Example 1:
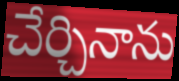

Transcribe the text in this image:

చేర్చినాను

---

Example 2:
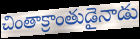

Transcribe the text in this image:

చింతాక్రాంతుడైనాడు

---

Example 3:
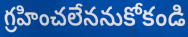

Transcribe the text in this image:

గ్రహించలేననుకోకండి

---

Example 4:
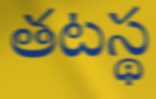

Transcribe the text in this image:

తటస్థ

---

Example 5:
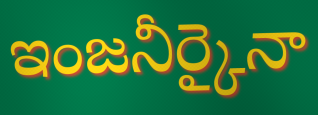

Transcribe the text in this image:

ఇంజనీర్కైనా